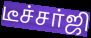
டீச்சர்ஜி